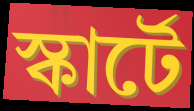
স্কার্টে